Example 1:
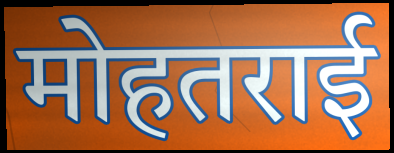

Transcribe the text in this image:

मोहतराई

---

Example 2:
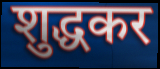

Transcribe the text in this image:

शुद्धकर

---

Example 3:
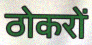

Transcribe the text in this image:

ठोकरों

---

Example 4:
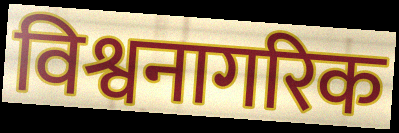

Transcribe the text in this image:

विश्वनागरिक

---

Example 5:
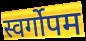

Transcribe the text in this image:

स्वर्गोपम